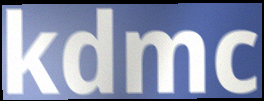
kdmc